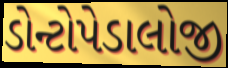
ડોન્ટોપેડાલોજી